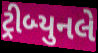
ટ્રીબ્યુનલે